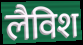
लैविश